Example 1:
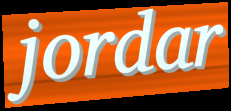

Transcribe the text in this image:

jordar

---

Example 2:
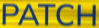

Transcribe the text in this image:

PATCH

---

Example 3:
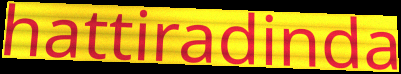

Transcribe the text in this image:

hattiradinda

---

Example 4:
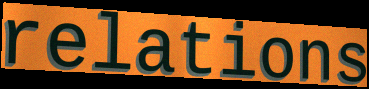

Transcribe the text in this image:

relations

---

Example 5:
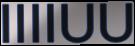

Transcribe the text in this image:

IIIIUU